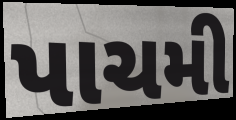
પાચમી